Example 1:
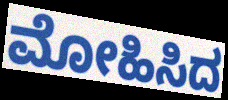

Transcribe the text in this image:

ಮೋಹಿಸಿದ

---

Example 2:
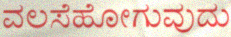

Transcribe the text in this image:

ವಲಸೆಹೋಗುವುದು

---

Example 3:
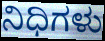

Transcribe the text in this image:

ನಿಧಿಗಳು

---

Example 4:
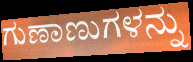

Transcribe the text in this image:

ಗುಣಾಣುಗಳನ್ನು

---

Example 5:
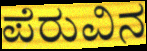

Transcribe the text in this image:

ಪೆರುವಿನ